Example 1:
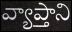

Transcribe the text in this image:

వ్యాప్తాని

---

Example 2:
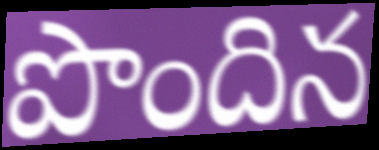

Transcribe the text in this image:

పొందిన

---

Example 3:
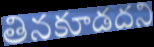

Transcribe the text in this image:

తినకూడదని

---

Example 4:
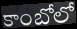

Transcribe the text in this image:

కాంబోలో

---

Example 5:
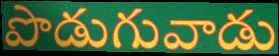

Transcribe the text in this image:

పొడుగువాడు